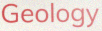
Geology